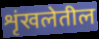
शृंखलेतील